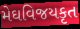
મેઘવિજયકૃત